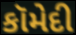
કૉમેદી